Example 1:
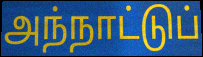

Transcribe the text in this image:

அந்நாட்டுப்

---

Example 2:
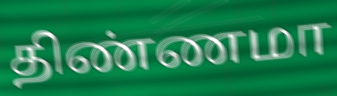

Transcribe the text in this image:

திண்ணமா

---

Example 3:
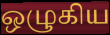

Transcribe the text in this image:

ஒழுகிய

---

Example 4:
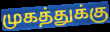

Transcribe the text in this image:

முகத்துக்கு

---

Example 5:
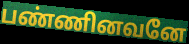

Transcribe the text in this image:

பண்ணினவனே